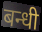
बन्धी